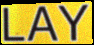
LAY